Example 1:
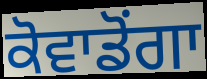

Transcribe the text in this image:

ਕੋਵਾਡੋਂਗਾ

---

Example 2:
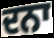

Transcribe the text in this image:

ਦਨਾ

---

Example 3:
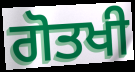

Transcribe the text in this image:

ਗੋਤਖੀ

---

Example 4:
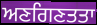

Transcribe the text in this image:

ਅਣਗਿਣਤਤਾ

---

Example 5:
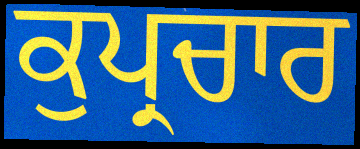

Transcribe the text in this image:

ਕੁਪ੍ਰਚਾਰ